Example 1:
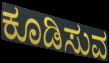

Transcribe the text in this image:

ಕೂಡಿಸುವ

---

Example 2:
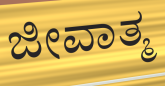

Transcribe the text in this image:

ಜೀವಾತ್ಮ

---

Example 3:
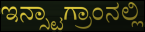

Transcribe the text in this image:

ಇನ್ಸ್ಟಾಗ್ರಾಂನಲ್ಲಿ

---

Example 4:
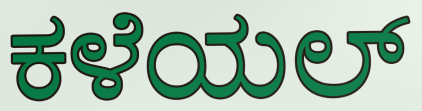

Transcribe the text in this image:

ಕಳೆಯಲ್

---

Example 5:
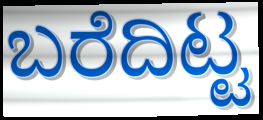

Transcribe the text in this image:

ಬರೆದಿಟ್ಟ